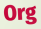
Org